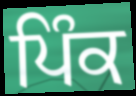
ਪਿੰਕ